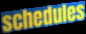
schedules